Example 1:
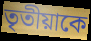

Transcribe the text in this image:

তৃতীয়াকে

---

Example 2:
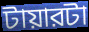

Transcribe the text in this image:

টায়ারটা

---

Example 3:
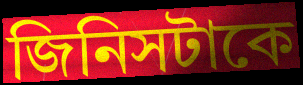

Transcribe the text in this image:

জিনিসটাকে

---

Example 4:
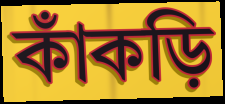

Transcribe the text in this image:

কাঁকড়ি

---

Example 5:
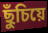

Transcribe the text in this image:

ছুঁচিয়ে